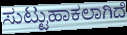
ಸುಟ್ಟುಹಾಕಲಾಗಿದೆ